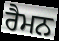
ਰੈਮਨ